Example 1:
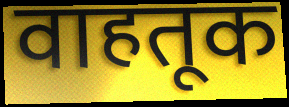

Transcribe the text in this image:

वाहतूक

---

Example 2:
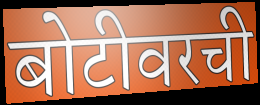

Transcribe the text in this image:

बोटीवरची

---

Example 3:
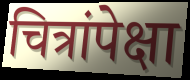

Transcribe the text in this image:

चित्रांपेक्षा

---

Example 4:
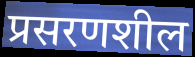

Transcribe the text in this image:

प्रसरणशील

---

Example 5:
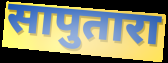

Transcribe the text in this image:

सापुतारा